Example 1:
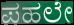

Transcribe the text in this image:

ಪಹಲೇ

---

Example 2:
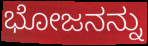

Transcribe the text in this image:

ಭೋಜನನ್ನು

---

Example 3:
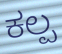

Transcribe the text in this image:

ಕಲ್ಪ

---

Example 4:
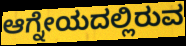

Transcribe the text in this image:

ಆಗ್ನೇಯದಲ್ಲಿರುವ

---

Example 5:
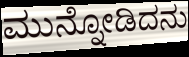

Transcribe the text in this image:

ಮುನ್ನೋಡಿದನು